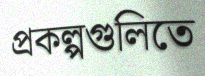
প্রকল্পগুলিতে